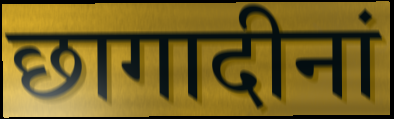
छागादीनां